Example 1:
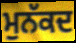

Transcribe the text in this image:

ਮੁਨੱਕਦ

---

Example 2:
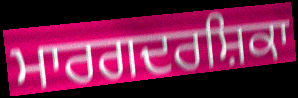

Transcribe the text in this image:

ਮਾਰਗਦਰਸ਼ਿਕਾ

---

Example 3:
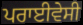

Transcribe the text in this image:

ਪਰਾਈਵੇਸੀ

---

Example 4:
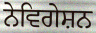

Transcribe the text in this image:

ਨੇਵਿਗੇਸ਼ਨ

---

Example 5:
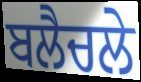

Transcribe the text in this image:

ਬਲੈਚਲੇ